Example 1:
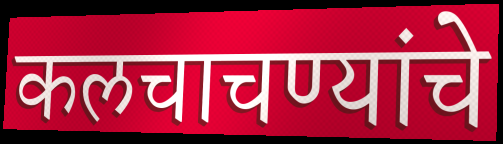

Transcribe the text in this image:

कलचाचण्यांचे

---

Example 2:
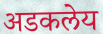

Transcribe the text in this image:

अडकलेय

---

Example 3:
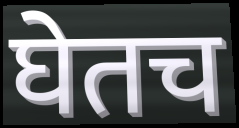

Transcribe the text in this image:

घेतच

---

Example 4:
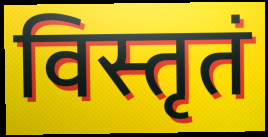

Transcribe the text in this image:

विस्तृतं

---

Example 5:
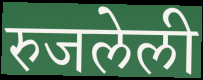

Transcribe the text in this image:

रुजलेली